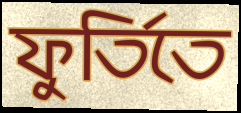
ফুর্তিতে